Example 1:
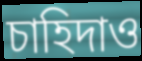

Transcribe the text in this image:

চাহিদাও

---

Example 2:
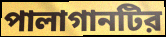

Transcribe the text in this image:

পালাগানটির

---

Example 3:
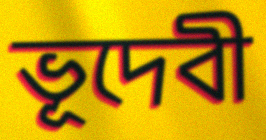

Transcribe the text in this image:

ভূদেবী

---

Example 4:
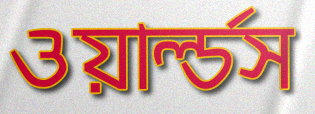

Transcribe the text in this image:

ওয়ার্ল্ডস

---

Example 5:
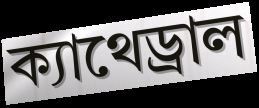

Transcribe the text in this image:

ক্যাথেড্রাল